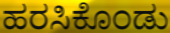
ಹರಸಿಕೊಂಡು